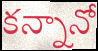
కన్నానో